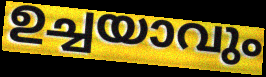
ഉച്ചയാവും